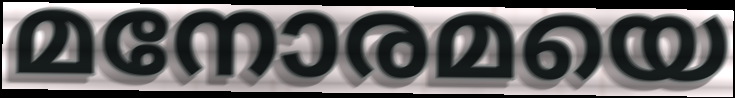
മനോരമയെ